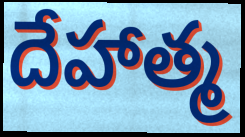
దేహాత్మ